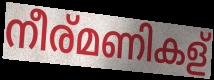
നീര്മണികള്